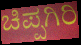
ಚಿಪ್ಪಗಿರಿ